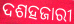
ଦଶହଜାରୀ